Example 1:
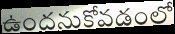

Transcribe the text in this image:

ఉందనుకోవడంలో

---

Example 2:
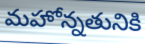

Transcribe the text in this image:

మహోన్నతునికి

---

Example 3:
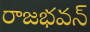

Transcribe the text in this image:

రాజభవన్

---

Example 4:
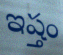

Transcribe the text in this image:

ఇష్తం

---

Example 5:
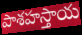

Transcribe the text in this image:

పాశహస్తాయ